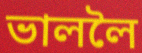
ভাললৈ